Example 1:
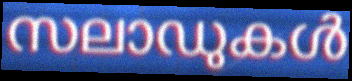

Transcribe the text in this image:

സലാഡുകൾ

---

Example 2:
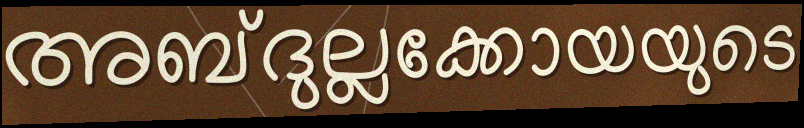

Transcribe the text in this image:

അബ്ദുല്ലക്കോയയുടെ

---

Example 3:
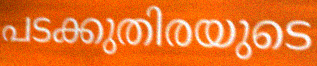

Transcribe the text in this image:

പടക്കുതിരയുടെ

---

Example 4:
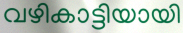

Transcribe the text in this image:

വഴികാട്ടിയായി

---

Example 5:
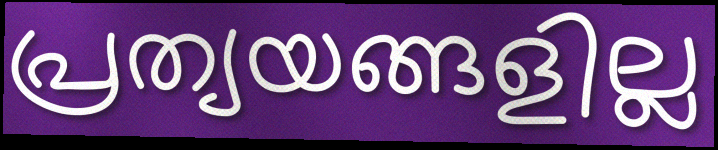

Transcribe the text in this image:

പ്രത്യയങ്ങളില്ല